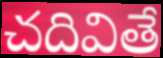
చదివితే